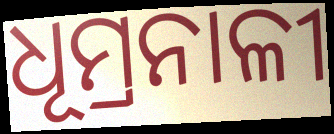
ଧୂମ୍ରନାଳୀ